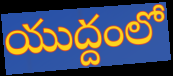
యుద్దంలో